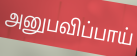
அனுபவிப்பாய்